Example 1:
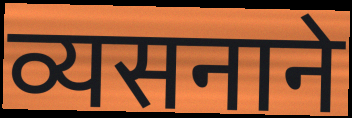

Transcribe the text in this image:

व्यसनाने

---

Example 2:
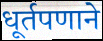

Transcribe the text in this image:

धूर्तपणाने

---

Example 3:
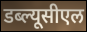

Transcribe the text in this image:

डब्ल्यूसीएल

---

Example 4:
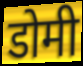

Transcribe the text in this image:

डोमी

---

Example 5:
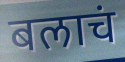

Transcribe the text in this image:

बलाचं